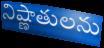
నిష్ణాతులను